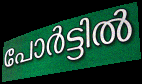
പോർട്ടിൽ